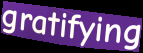
gratifying